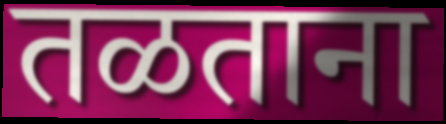
तळताना